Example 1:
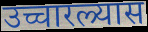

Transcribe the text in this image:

उच्चारल्यास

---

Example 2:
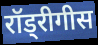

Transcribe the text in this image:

रॉड्रीगीस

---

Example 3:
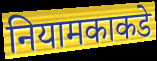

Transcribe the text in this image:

नियामकाकडे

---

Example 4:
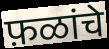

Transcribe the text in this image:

फ़ळांचे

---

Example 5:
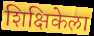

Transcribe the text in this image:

शिक्षिकेला